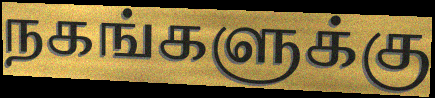
நகங்களுக்கு